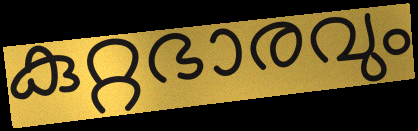
കുറ്റഭാരവും